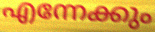
എന്നേക്കും